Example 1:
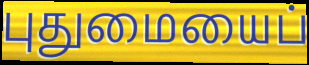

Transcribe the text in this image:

புதுமையைப்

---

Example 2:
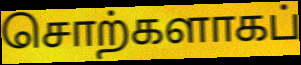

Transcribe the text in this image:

சொற்களாகப்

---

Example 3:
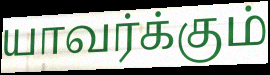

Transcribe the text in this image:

யாவர்க்கும்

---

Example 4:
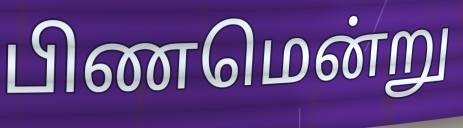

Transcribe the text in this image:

பிணமென்று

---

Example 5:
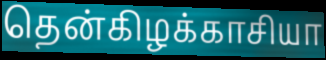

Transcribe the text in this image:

தென்கிழக்காசியா